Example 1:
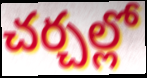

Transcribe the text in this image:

చర్చల్లో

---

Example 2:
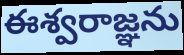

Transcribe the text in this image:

ఈశ్వరాజ్ఞను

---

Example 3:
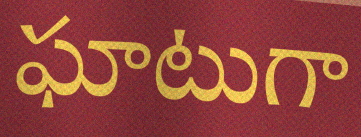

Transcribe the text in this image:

ఘాటుగా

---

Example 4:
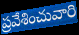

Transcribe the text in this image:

ప్రవేశించువారి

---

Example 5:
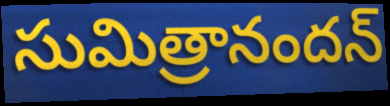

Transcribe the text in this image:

సుమిత్రానందన్